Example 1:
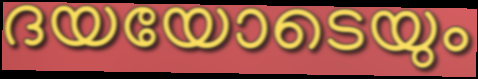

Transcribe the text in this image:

ദയയോടെയും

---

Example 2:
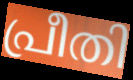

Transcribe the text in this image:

പ്രീതി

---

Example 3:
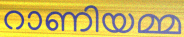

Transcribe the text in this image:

റാണിയമ്മ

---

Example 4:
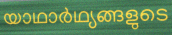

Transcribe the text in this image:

യാഥാർഥ്യങ്ങളുടെ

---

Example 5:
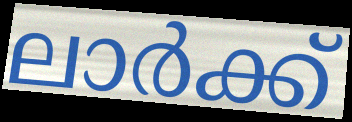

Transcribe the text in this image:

ലാർക്ക്